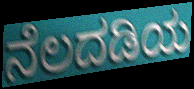
ನೆಲದಡಿಯ